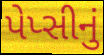
પેપ્સીનું